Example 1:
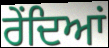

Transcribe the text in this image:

ਰੇਂਦਿਆਂ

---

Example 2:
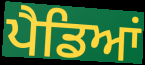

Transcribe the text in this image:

ਪੈਡਿਆਂ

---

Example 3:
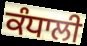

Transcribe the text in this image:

ਕੰਧਾਲੀ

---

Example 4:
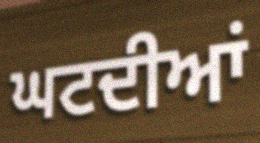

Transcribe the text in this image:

ਘਟਦੀਆਂ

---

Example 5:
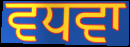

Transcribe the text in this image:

ਵਧਵਾ